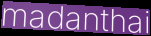
madanthai